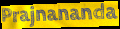
Prajnananda